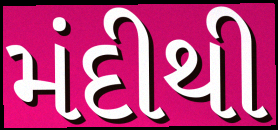
મંદીથી